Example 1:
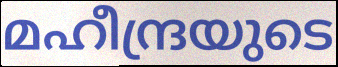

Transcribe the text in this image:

മഹീന്ദ്രയുടെ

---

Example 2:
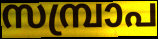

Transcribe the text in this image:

സമ്പ്രാപ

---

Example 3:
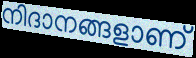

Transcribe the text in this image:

നിദാനങ്ങളാണ്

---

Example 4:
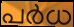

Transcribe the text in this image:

പർധ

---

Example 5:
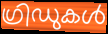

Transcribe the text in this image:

ഗ്രിഡുകൾ